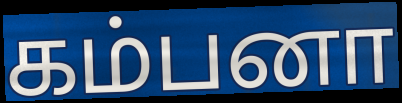
கம்பனா